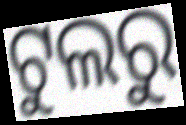
ଟୁଲରୁ